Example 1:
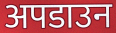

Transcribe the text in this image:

अपडाउन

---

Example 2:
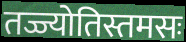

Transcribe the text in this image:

तज्ज्योतिस्तमसः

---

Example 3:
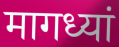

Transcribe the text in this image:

मागध्यां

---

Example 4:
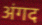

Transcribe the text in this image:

अंगद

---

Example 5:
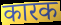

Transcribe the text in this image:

कारक